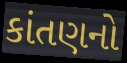
કાંતણનો